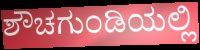
ಶೌಚಗುಂಡಿಯಲ್ಲಿ